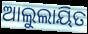
ଆଲୁଲାୟିତ